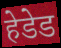
हेडेड